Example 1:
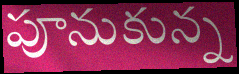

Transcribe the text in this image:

పూనుకున్న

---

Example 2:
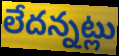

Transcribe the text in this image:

లేదన్నట్లు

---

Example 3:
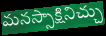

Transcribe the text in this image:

మనస్సాక్షినిచ్చు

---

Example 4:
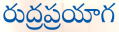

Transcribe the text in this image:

రుద్రప్రయాగ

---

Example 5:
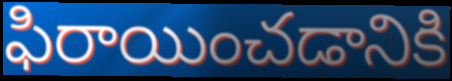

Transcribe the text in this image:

ఫిరాయించడానికి